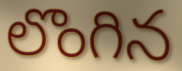
లొంగిన